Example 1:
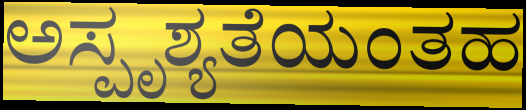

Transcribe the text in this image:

ಅಸ್ಪೃಶ್ಯತೆಯಂತಹ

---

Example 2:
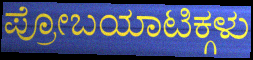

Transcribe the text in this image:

ಪ್ರೋಬಯಾಟಿಕ್ಗಳು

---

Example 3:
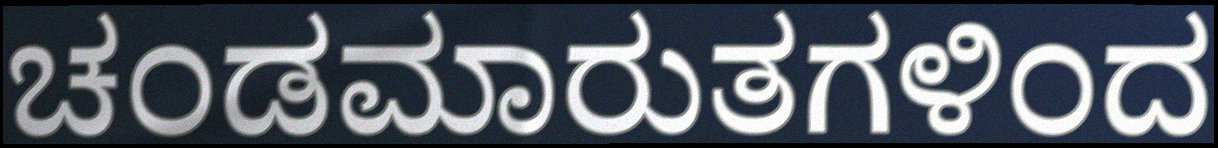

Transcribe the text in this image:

ಚಂಡಮಾರುತಗಳಿಂದ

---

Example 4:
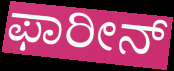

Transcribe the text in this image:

ಫಾರೀನ್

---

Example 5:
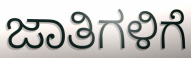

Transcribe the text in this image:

ಜಾತಿಗಳಿಗೆ